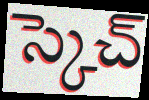
స్కెచ్